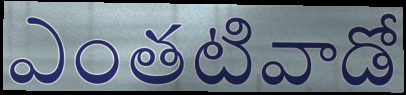
ఎంతటివాడో